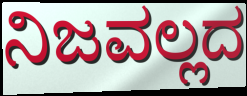
ನಿಜವಲ್ಲದ